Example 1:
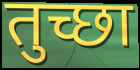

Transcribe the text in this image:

तुच्छा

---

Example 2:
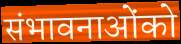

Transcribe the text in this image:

संभावनाओंको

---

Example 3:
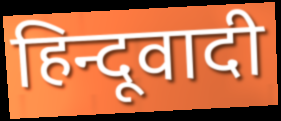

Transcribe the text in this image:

हिन्दूवादी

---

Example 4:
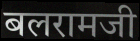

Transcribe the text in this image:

बलरामजी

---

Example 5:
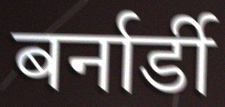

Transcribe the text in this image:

बर्नार्डी